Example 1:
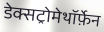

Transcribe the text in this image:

डेक्सट्रोमेथॉर्फ़ेन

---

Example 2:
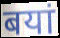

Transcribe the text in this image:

बयां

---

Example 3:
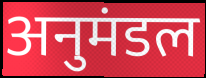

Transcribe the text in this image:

अनुमंडल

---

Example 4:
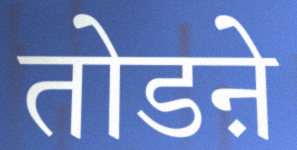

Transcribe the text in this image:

तोडऩे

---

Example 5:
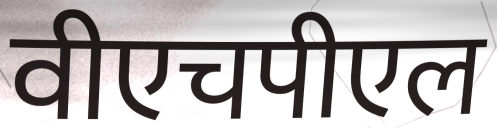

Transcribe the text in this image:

वीएचपीएल